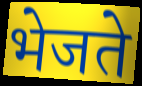
भेजते